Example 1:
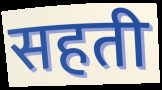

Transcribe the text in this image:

सहती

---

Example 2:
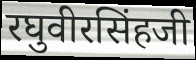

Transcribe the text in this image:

रघुवीरसिंहजी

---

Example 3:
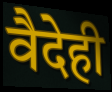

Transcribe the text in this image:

वैदेही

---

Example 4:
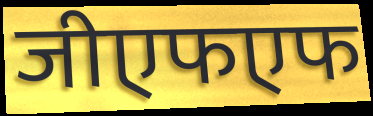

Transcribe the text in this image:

जीएफएफ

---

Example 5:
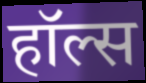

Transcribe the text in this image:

हॉल्स